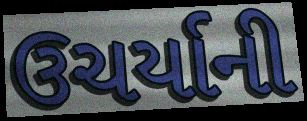
ઉચર્યાની